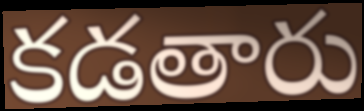
కడతారు